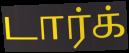
டார்க்